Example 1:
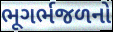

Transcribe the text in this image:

ભૂગર્ભજળનો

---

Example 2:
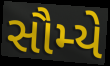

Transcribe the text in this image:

સૌમ્યે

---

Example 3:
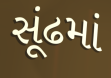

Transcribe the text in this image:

સૂંઢમાં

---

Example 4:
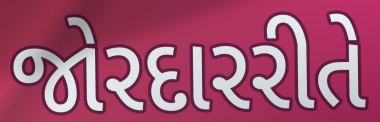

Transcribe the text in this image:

જોરદારરીતે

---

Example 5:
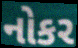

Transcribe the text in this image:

નોકર